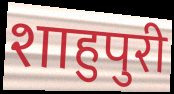
शाहुपुरी